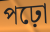
পঢ়ো